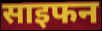
साइफन